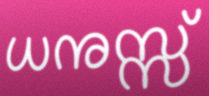
ധനുസ്സ്